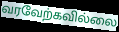
வரவேற்கவில்லை